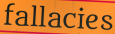
fallacies